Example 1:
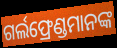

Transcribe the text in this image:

ଗର୍ଲଫ୍ରେଣ୍ଡମାନଙ୍କ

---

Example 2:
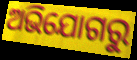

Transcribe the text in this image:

ଅଭିଯୋଗରୁ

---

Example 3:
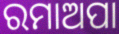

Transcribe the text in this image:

ରମାଅପା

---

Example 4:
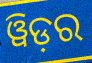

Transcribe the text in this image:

ୱିଡ଼ର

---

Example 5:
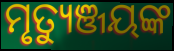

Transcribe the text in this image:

ମୃତ୍ୟୁଞ୍ଜୟଙ୍କ